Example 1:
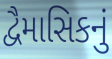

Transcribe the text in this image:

દ્વૈમાસિકનું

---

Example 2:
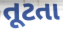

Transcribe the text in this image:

તૂટતા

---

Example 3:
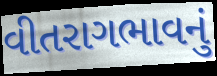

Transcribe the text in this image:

વીતરાગભાવનું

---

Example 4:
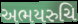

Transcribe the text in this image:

અભયરુચિ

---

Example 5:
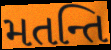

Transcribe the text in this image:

મતન્તિ